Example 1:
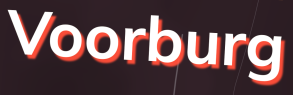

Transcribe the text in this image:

Voorburg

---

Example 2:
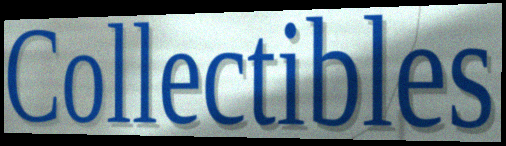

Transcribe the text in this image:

Collectibles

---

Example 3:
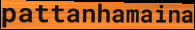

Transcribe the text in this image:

pattanhamaina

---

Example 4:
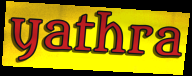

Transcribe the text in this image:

yathra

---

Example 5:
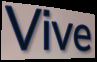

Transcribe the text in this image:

Vive